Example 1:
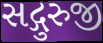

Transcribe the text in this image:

સદ્ગુરુજી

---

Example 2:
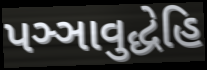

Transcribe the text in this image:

પઞ્ઞાવુદ્ધેહિ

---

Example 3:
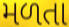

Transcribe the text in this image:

મળતા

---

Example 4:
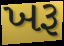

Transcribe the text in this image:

ખરૂ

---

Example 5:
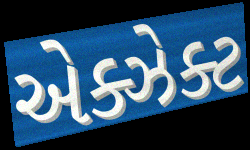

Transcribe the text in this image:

એક્ઝેક્ટ